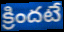
క్రిందటే